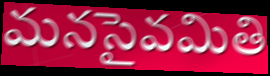
మనసైవమితి